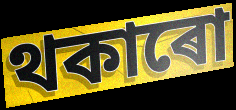
থকাৰো